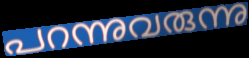
പറന്നുവരുന്നു